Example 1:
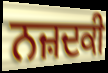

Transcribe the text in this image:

ਨਜ਼ਦਕੀ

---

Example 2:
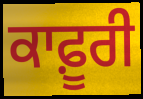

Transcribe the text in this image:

ਕਾਫ਼ੂਰੀ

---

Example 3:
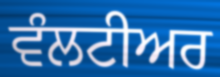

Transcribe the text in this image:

ਵੰਲਟੀਅਰ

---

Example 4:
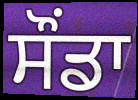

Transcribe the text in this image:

ਸੌਂਡਾ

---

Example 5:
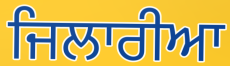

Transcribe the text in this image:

ਜਿਲਾਰੀਆ